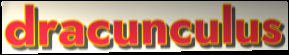
dracunculus